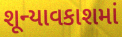
શૂન્યાવકાશમાં